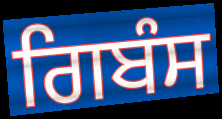
ਗਿਬੰਸ